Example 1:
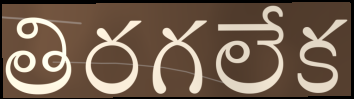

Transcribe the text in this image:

తిరగలేక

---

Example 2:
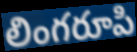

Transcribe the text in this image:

లింగరూపి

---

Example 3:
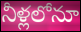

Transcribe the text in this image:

నీళ్లలోనూ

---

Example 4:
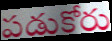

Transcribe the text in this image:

పడుకోరు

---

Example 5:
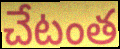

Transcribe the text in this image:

చేటంత